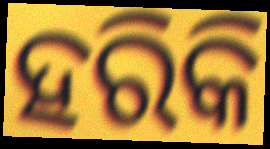
ହରିକି